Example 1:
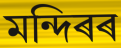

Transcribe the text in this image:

মন্দিৰৰ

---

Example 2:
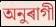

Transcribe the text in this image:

অনুৰাগী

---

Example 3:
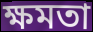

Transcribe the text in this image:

ক্ষমতা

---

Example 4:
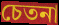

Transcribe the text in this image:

চেতনা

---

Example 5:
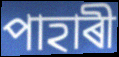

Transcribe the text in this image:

পাহাৰী